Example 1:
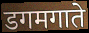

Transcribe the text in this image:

डगमगाते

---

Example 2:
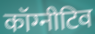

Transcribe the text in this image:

कॉग्‍नीटिव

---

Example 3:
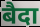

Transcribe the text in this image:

बैदा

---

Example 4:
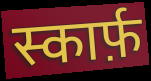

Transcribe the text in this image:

स्कार्फ़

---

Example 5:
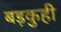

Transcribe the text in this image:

बड़कुही